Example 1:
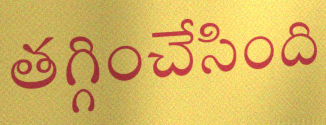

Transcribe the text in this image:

తగ్గించేసింది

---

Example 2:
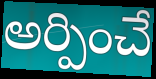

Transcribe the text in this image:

అర్పించే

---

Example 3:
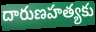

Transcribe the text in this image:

దారుణహత్యకు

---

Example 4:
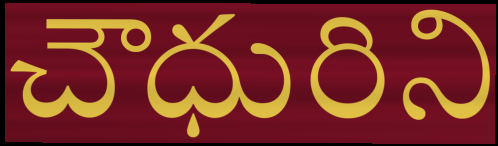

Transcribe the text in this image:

చౌధురిని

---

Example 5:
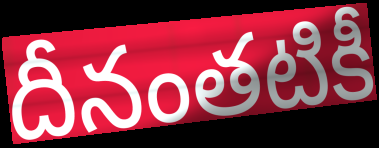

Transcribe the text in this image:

దీనంతటికీ